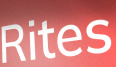
Rites